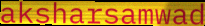
aksharsamwad